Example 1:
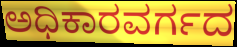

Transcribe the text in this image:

ಅಧಿಕಾರವರ್ಗದ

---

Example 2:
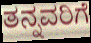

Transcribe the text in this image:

ತನ್ನವರಿಗೆ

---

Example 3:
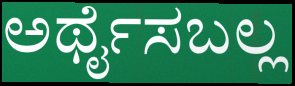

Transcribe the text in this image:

ಅರ್ಥೈಸಬಲ್ಲ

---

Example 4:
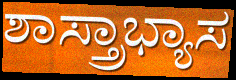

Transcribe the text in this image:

ಶಾಸ್ತ್ರಾಭ್ಯಾಸ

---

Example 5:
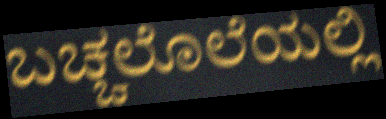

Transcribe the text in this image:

ಬಚ್ಚಲೊಲೆಯಲ್ಲಿ